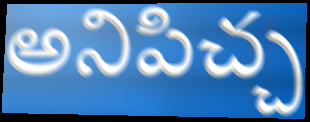
అనిపిచ్చ